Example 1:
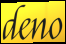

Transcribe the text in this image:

deno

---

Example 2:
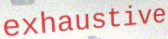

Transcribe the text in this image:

exhaustive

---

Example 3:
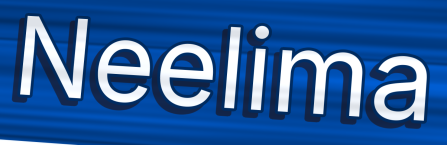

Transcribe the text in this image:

Neelima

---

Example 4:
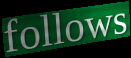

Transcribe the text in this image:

follows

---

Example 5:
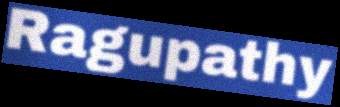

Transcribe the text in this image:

Ragupathy